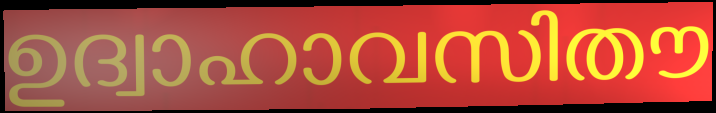
ഉദ്വാഹാവസിതൗ